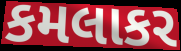
કમલાકર